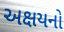
અક્ષયનો